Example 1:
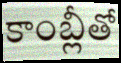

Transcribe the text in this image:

కాంబ్లీతో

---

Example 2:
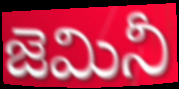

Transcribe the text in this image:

జెమినీ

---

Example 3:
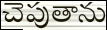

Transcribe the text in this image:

చెపుతాను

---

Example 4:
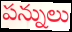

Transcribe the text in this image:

పన్నులు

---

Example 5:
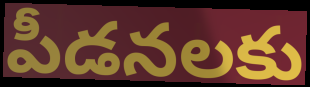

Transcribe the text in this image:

పీడనలకు